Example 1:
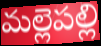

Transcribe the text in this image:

మల్లెపల్లి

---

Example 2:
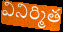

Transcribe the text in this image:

వినిర్మిత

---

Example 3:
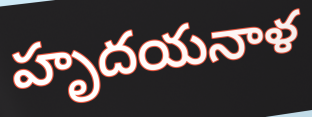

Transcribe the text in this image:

హృదయనాళ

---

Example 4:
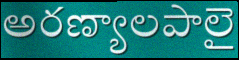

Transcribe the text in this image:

అరణ్యాలపాలై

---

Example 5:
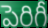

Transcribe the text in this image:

పెరిగీ